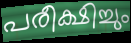
പരീക്ഷിച്ചും